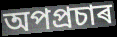
অপপ্ৰচাৰ